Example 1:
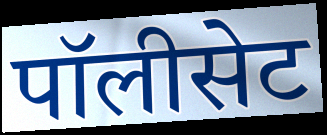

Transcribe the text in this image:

पॉलीसेट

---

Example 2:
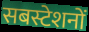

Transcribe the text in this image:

सबस्टेशनों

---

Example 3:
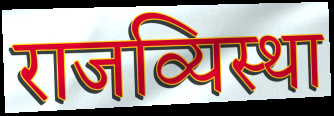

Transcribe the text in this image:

राजव्यिस्था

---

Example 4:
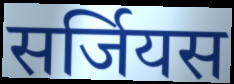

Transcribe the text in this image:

सर्जियस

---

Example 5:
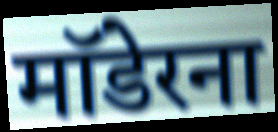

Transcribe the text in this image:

मॉडेरना